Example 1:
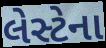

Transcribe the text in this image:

લેસ્ટેના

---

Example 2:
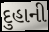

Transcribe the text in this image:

દુહાની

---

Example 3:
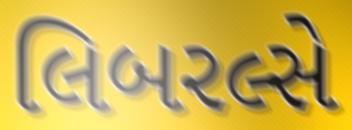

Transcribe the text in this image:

લિબરલ્સે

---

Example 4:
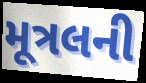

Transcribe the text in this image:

મૂત્રલની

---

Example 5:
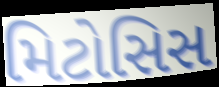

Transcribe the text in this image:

મિટોસિસ